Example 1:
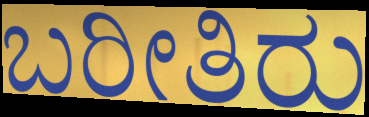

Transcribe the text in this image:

ಬರೀತಿರು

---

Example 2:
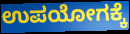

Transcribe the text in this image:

ಉಪಯೋಗಕ್ಕೆ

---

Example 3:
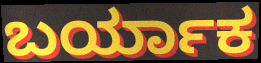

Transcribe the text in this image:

ಬರ್ಯಾಕ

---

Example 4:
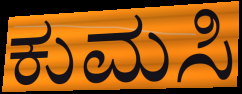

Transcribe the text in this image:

ಕುಮಸಿ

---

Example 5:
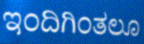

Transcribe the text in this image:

ಇಂದಿಗಿಂತಲೂ